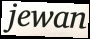
jewan